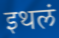
इथलं